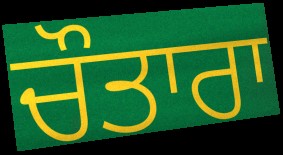
ਚੌਤਾਰਾ